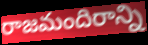
రాజమందిరాన్ని